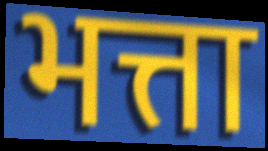
भत्ता